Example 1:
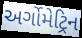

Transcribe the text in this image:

અર્ગોમેટ્રિન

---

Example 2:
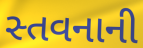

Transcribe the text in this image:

સ્તવનાની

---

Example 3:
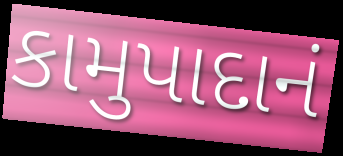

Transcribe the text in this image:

કામુપાદાનં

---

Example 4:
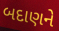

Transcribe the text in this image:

બદાણને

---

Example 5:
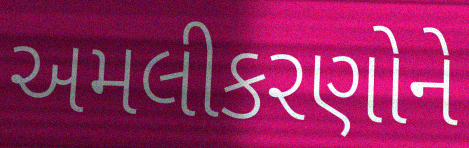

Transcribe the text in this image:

અમલીકરણોને